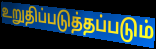
உறுதிப்படுத்தப்படும்